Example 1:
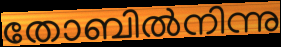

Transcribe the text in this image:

തോബിൽനിന്നു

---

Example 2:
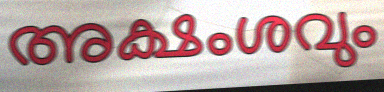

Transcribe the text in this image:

അക്ഷംശവും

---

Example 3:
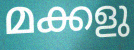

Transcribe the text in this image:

മക്കളു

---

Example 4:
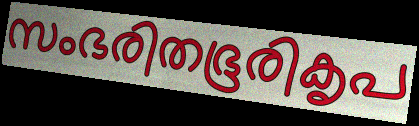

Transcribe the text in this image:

സംഭരിതഭൂരികൃപ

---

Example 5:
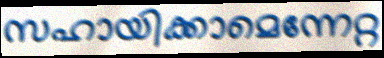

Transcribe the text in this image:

സഹായിക്കാമെന്നേറ്റ